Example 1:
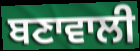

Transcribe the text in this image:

ਬਣਾਵਾਲੀ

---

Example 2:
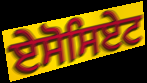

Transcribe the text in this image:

ਏਸੋਸਿਏਟ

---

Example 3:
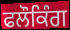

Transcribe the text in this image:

ਫਲੌਕਿੰਗ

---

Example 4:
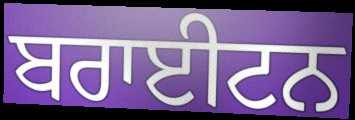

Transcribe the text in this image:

ਬਰਾਈਟਨ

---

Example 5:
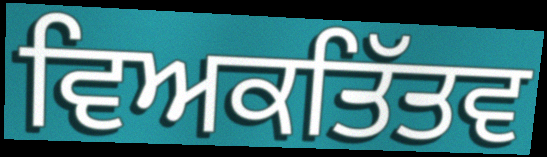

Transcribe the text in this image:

ਵਿਅਕਤਿੱਤਵ